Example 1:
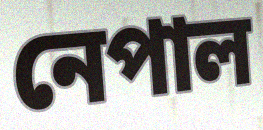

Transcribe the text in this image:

নেপাল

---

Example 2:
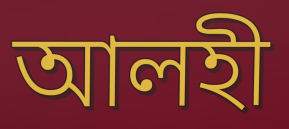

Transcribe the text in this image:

আলহী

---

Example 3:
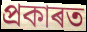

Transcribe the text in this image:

প্ৰকাৰত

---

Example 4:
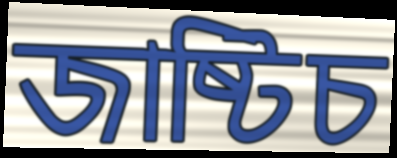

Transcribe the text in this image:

জাষ্টিচ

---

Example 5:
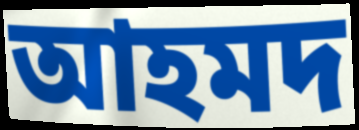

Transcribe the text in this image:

আহমদ